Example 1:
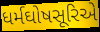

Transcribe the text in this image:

ધર્મઘોષસૂરિએ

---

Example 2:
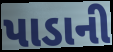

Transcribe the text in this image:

પાડાની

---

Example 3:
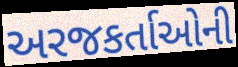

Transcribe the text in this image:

અરજકર્તાઓની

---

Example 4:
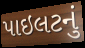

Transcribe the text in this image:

પાઇલટનું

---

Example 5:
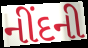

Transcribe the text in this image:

નીંદની